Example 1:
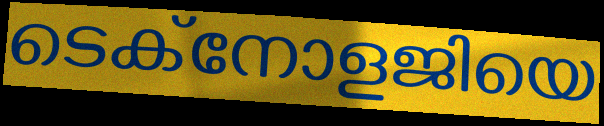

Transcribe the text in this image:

ടെക്‌നോളജിയെ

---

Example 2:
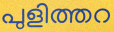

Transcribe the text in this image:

പുളിത്തറ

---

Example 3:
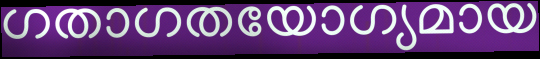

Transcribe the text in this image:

ഗതാഗതയോഗ്യമായ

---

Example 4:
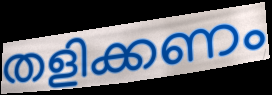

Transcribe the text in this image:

തളിക്കണം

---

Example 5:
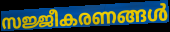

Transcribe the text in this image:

സജ്ജീകരണങ്ങൾ